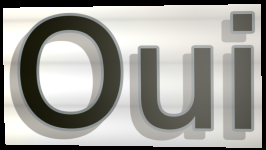
Oui